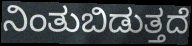
ನಿಂತುಬಿಡುತ್ತದೆ